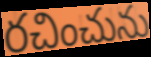
రచించును